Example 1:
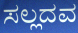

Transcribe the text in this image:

ಸಲ್ಲದವ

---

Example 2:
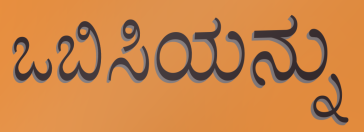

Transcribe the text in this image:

ಒಬಿಸಿಯನ್ನು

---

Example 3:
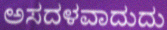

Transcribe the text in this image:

ಅಸದಳವಾದುದು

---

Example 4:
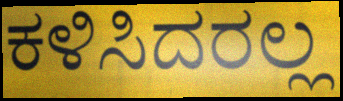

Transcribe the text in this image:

ಕಳಿಸಿದರಲ್ಲ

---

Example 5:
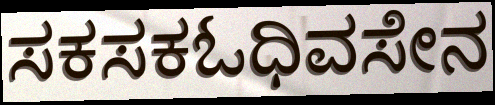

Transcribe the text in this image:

ಸಕಸಕಓಧಿವಸೇನ